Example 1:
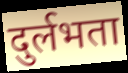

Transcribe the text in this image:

दुर्लभता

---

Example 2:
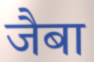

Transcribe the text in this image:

जैबा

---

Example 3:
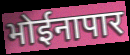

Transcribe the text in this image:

भोईनापार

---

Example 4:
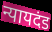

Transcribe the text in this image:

न्यायदंड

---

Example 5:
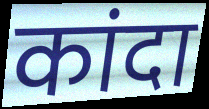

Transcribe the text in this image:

कांदा